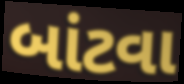
બાંટવા